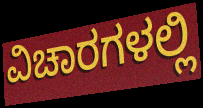
ವಿಚಾರಗಳಲ್ಲಿ